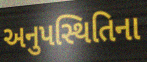
અનુપસ્થિતિના